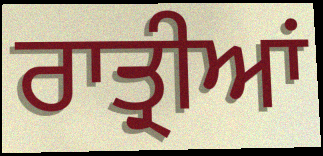
ਰਾਤ੍ਰੀਆਂ